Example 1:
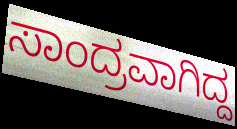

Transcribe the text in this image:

ಸಾಂದ್ರವಾಗಿದ್ದ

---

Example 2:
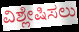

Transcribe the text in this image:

ವಿಶ್ಲೇಷಿಸಲು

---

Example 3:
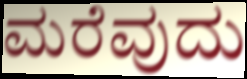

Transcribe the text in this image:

ಮರೆವುದು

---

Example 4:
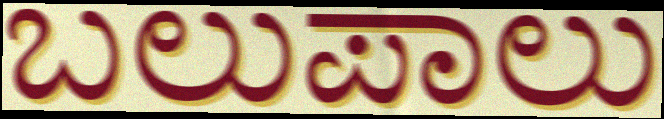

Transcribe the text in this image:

ಬಲುಪಾಲು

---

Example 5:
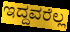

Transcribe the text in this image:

ಇದ್ದವರೆಲ್ಲ